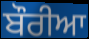
ਬੌਰੀਆ